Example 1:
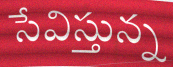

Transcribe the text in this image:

సేవిస్తున్న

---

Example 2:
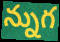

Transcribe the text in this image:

న్నుగ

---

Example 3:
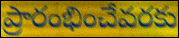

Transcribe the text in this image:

ప్రారంభించేవరకు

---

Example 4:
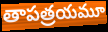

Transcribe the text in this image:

తాపత్రయమూ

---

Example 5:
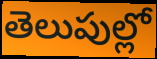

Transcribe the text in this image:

తెలుపుల్లో